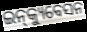
ଇନ୍‌କ୍ୟୁବେସନ